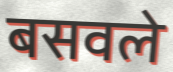
बसवले